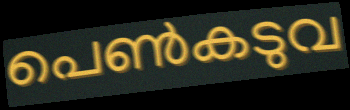
പെൺകടുവ